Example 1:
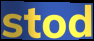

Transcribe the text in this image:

stod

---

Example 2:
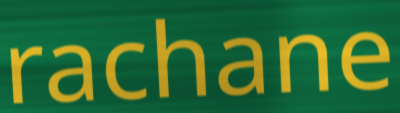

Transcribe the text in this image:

rachane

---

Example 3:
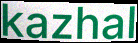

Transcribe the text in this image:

kazhal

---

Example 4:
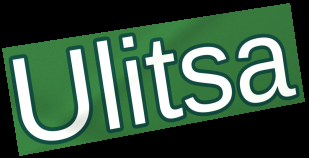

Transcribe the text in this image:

Ulitsa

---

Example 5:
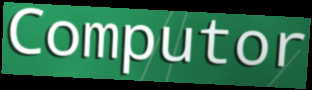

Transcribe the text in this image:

Computor